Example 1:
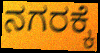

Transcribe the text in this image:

ನಗರಕ್ಕೆ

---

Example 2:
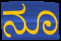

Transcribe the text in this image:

ನೂ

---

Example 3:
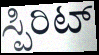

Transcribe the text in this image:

ಸ್ಪಿರಿಟ್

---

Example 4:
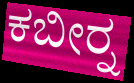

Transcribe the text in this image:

ಕಬೀರ್‍ನ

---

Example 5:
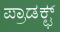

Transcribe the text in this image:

ಪ್ರಾಡಕ್ಟ್